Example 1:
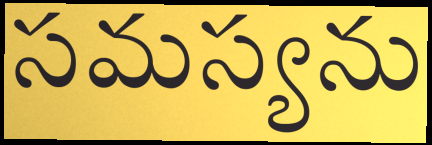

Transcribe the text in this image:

సమస్యను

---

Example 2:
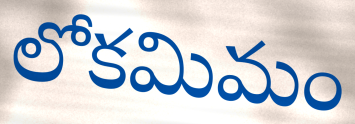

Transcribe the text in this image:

లోకమిమం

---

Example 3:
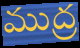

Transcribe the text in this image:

ముద్ర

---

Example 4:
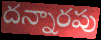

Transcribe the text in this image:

దన్నారపు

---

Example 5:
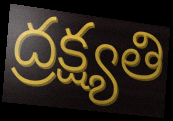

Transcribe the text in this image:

ద్రక్ష్యతి